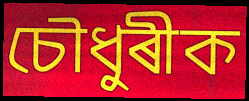
চৌধুৰীক